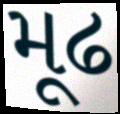
મૂઢ